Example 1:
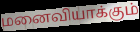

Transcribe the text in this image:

மனைவியாக்கும்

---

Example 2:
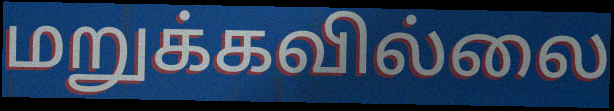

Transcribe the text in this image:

மறுக்கவில்லை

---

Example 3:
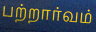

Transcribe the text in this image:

பற்றார்வம்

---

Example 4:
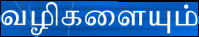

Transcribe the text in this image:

வழிகளையும்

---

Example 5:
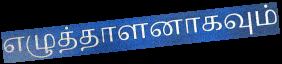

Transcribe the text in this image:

எழுத்தாளனாகவும்